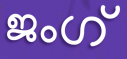
ജംഗ്